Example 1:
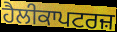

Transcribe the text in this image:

ਹੈਲੀਕਾਪਟਰਜ਼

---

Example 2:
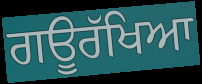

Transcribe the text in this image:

ਗਊਰੱਖਿਆ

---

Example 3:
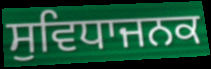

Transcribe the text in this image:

ਸੁਵਿਧਾਜਨਕ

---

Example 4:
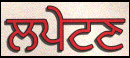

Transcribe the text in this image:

ਲਪੇਟਣ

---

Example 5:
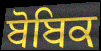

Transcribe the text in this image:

ਬੋਬਿਕ